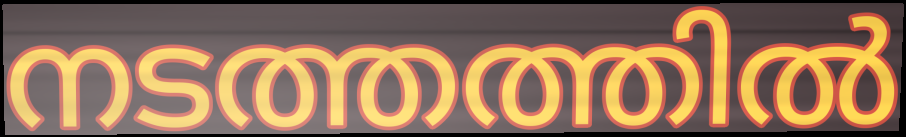
നടത്തത്തിൽ